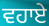
ਵਹਾਏ